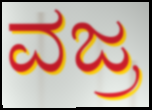
ವಜ್ರ